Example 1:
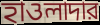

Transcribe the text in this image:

হাওলাদার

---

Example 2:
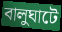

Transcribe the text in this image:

বালুঘাটে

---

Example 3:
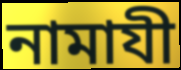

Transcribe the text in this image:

নামাযী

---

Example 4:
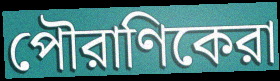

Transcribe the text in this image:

পৌরাণিকেরা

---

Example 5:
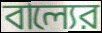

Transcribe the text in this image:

বাল্যের